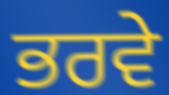
ਭਰਵੇ